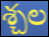
శ్చల